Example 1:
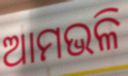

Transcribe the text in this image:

ଆମଭଳି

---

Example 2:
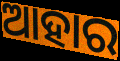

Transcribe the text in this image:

ଆହାର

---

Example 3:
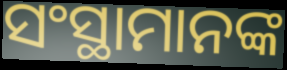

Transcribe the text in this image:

ସଂସ୍ଥାମାନଙ୍କ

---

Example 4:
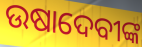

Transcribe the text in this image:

ଉଷାଦେବୀଙ୍କ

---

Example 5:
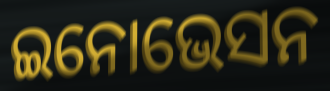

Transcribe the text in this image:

ଇନୋଭେସନ